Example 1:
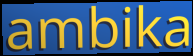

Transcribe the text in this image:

ambika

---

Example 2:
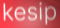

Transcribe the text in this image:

kesip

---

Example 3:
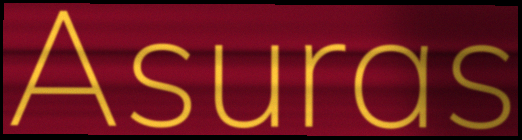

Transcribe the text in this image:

Asuras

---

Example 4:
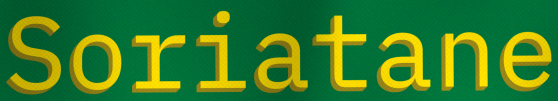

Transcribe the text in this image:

Soriatane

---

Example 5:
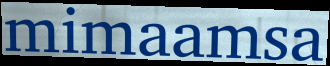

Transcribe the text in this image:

mimaamsa